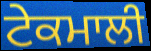
ਟੇਕਮਾਲੀ